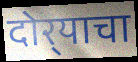
दोर्‍याचा